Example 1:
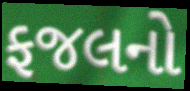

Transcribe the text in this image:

ફજલનો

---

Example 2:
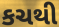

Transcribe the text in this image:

કચથી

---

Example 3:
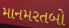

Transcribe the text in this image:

માનમરતબો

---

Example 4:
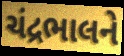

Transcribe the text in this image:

ચંદ્રભાલને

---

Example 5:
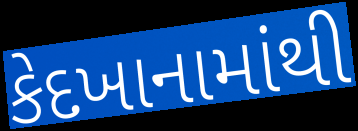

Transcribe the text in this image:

કેદખાનામાંથી